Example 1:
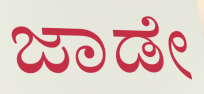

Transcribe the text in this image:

ಜಾಡೇ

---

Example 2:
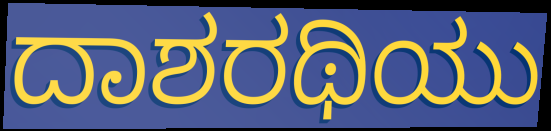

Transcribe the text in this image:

ದಾಶರಥಿಯು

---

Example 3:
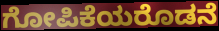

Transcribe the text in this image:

ಗೋಪಿಕೆಯರೊಡನೆ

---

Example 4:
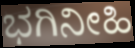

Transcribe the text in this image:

ಭಗಿನೀಹಿ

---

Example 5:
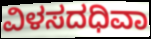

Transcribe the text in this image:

ವಿಳಸದಧಿವಾ